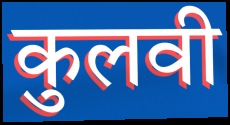
कुलवी